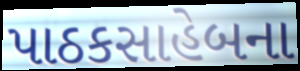
પાઠકસાહેબના